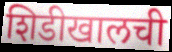
शिडीखालची